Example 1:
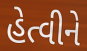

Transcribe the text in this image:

હેત્વીને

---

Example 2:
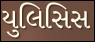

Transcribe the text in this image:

યુલિસિસ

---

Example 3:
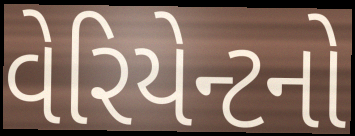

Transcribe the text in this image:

વેરિયેન્ટનો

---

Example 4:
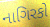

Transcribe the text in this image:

નાગિરકો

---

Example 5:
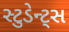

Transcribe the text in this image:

સ્ટુડેન્ટ્સ